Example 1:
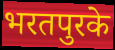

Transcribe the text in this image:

भरतपुरके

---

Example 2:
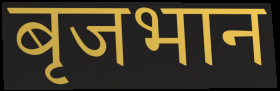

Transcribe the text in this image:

बृजभान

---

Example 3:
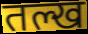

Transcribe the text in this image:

तल्‍ख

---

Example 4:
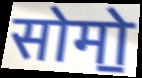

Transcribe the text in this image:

सोमो॒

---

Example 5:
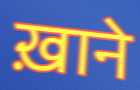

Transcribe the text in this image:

ख़ाने